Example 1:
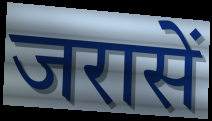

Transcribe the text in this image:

जरासें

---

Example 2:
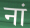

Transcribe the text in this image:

नां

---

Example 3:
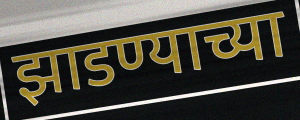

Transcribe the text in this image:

झाडण्याच्या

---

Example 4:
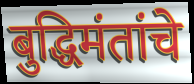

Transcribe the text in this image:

बुद्धिमंतांचे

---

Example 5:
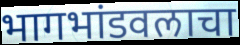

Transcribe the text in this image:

भागभांडवलाचा